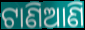
ଟାଣିଆଣି